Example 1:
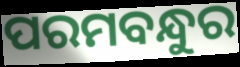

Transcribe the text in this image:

ପରମବନ୍ଧୁର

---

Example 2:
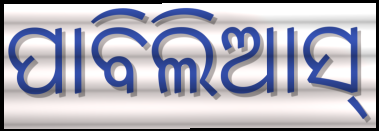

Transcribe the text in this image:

ପାବିଲିଆସ୍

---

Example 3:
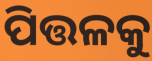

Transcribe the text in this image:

ପିତ୍ତଳକୁ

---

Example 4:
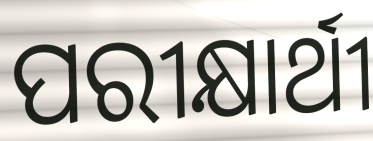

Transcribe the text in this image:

ପରୀକ୍ଷାର୍ଥୀ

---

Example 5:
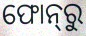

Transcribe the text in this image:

ଫୋନ୍‌ରୁ